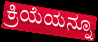
ಕ್ರಿಯೆಯನ್ನೂ